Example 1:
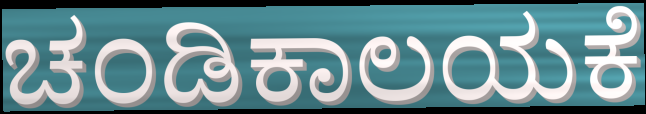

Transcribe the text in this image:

ಚಂಡಿಕಾಲಯಕೆ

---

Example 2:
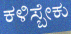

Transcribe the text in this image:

ಕಳಿಸ್ಬೇಕು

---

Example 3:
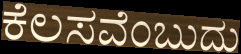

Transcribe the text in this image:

ಕೆಲಸವೆಂಬುದು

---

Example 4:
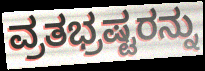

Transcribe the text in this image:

ವ್ರತಭ್ರಷ್ಟರನ್ನು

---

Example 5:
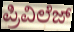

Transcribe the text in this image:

ಪ್ರಿವಿಲೆಜ್